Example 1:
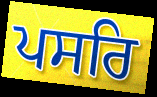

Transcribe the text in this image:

ਪਸਰਿ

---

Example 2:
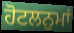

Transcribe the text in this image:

ਹੋਟਲਨੁਮਾਂ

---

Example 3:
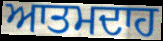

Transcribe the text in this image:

ਆਤਮਦਾਹ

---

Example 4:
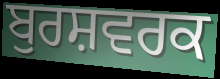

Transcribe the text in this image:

ਬੁਰਸ਼ਵਰਕ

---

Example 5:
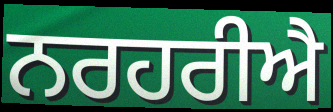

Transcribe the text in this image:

ਨਰਹਰੀਐ